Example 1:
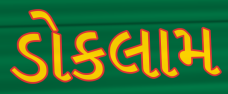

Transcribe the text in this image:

ડોકલામ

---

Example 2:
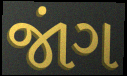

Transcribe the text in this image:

જાંગ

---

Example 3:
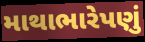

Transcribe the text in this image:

માથાભારેપણું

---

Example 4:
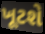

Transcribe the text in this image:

ખૂટશે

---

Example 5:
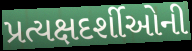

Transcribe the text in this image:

પ્રત્યક્ષદર્શીઓની